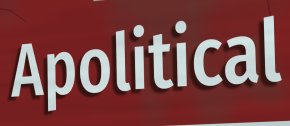
Apolitical